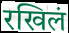
रखिलं